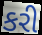
કરી